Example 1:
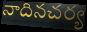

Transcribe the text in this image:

నాదినచర్య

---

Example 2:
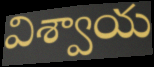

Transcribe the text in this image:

విశ్వాయ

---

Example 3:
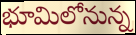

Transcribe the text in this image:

భూమిలోనున్న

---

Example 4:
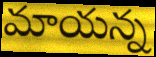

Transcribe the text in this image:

మాయన్న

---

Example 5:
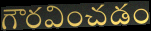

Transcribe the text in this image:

గౌరవించడం